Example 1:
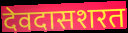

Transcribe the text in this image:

देवदासशरत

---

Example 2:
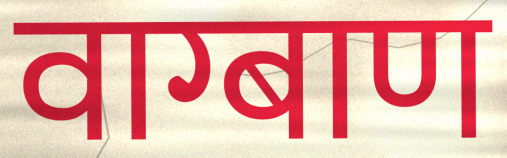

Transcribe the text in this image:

वाग्बाण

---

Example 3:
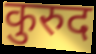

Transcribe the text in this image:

कुरुद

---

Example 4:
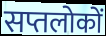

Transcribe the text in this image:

सप्तलोकों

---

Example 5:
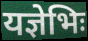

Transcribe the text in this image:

यज्ञेभिः